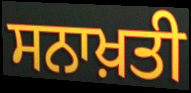
ਸਨਾਖ਼ਤੀ